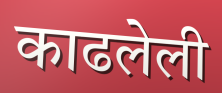
काढलेली